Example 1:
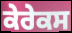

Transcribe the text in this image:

ਕੇਰੇਕਸ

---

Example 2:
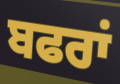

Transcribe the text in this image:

ਬਫਰਾਂ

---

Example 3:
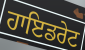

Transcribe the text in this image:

ਹਾਇਡਰੇਟ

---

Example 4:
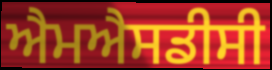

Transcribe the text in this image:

ਐਮਐਸਡੀਸੀ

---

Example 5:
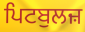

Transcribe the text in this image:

ਪਿਟਬੁਲਜ਼